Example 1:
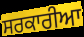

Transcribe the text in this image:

ਸਰਕਾਰੀਆ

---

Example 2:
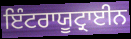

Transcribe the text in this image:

ਇੰਟਰਾਯੂਟ੍ਰਾਈਨ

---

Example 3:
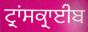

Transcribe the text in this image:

ਟ੍ਰਾਂਸਕ੍ਰਾਈਬ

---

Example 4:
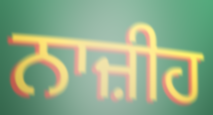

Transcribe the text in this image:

ਨਾਜ਼ੀਹ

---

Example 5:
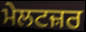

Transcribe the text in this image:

ਮੇਲਟਜ਼ਰ